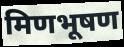
मिणभूषण